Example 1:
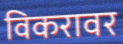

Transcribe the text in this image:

विकरावर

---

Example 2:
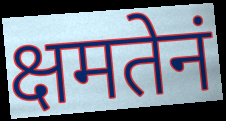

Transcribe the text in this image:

क्षमतेनं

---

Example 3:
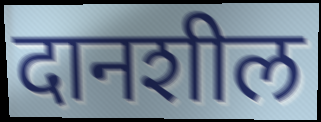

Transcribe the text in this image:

दानशील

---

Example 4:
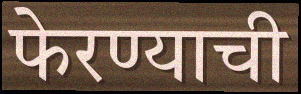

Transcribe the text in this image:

फेरण्याची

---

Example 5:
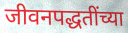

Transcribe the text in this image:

जीवनपद्धतींच्या